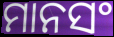
ମାନସଂ